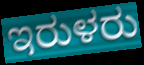
ಇರುಳರು